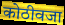
कोठीवजा